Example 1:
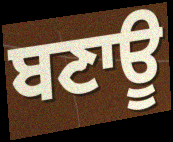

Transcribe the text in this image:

ਬਣਾਊ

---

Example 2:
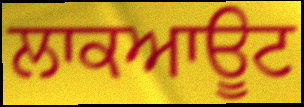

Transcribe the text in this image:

ਲਾਕਆਊਟ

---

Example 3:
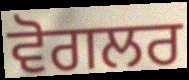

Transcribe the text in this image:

ਵੋਗਲਰ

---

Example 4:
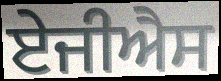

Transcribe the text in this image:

ਏਜੀਐਸ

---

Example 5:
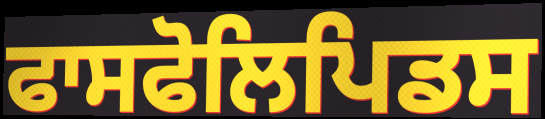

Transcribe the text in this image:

ਫਾਸਫੋਲਿਪਿਡਸ